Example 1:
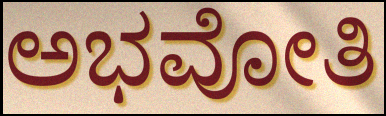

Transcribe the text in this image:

ಅಭವೋತಿ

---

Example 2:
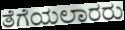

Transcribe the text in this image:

ತೆಗೆಯಲಾರರು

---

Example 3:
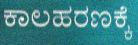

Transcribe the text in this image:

ಕಾಲಹರಣಕ್ಕೆ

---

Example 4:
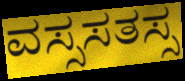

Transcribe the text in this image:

ವಸ್ಸಸತಸ್ಸ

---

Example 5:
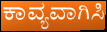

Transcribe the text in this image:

ಕಾವ್ಯವಾಗಿಸಿ